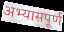
अभ्यासपूर्ण